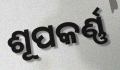
ଶୂପକର୍ଣ୍ଣ